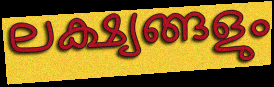
ലക്ഷ്യങ്ങളും